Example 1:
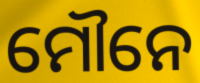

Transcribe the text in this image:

ମୌନେ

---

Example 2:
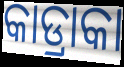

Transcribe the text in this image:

କାଡ୍ରାକା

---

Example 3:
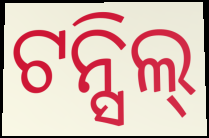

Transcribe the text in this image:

ଟନ୍ସିଲ୍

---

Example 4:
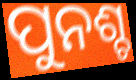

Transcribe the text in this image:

ପୁନଶ୍ଚ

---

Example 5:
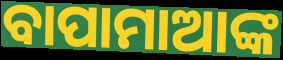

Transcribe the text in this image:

ବାପାମାଆଙ୍କ